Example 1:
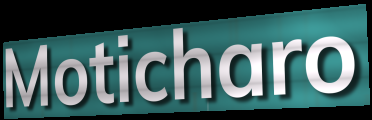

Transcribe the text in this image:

Moticharo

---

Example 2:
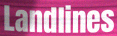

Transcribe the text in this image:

Landlines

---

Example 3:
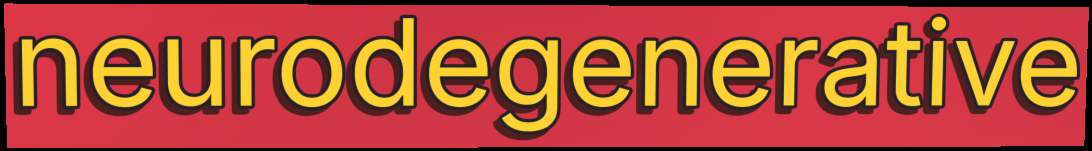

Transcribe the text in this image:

neurodegenerative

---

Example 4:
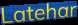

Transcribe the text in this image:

Latehar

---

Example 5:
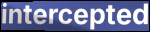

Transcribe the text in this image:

intercepted